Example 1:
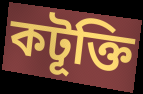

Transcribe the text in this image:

কটূক্তি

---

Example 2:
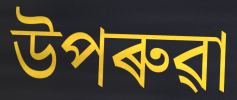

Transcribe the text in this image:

উপৰুৱা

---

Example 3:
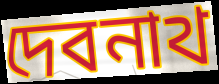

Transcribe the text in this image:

দেবনাথ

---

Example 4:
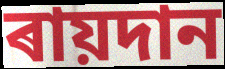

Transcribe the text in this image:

ৰায়দান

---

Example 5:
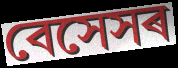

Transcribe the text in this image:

বেসেসৰ